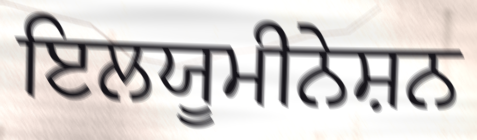
ਇਲਯੂਮੀਨੇਸ਼ਨ